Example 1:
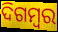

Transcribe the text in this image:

ଦିଗମ୍ବର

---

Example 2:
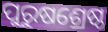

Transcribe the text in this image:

ପୁରୁଷଶ୍ରେଷ୍ଠ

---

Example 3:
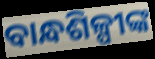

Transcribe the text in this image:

ବାନ୍ଧଶିଳ୍ପୀଙ୍କ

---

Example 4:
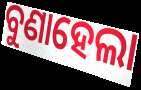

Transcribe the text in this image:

ବୁଣାହେଲା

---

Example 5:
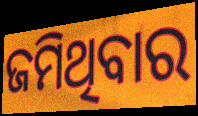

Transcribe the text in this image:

ଜମିଥିବାର